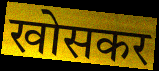
खोसकर